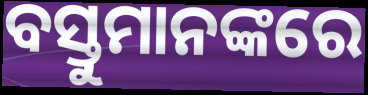
ବସ୍ତୁମାନଙ୍କରେ